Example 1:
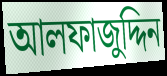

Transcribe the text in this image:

আলফাজুদ্দিন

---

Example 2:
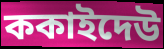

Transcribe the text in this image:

ককাইদেউ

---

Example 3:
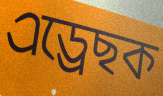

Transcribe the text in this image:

এড্ৰেছক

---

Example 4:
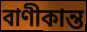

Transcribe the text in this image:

বাণীকান্ত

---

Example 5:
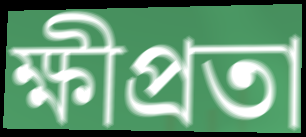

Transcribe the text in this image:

ক্ষীপ্ৰতা